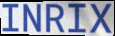
INRIX